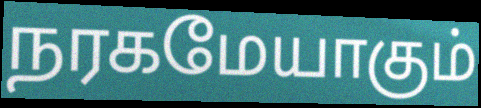
நரகமேயாகும்